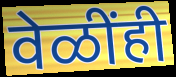
वेळींही